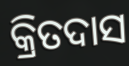
କ୍ରିତଦାସ